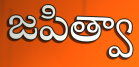
జపిత్వా